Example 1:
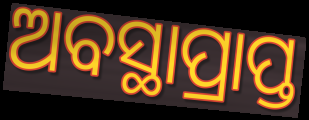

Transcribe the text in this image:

ଅବସ୍ଥାପ୍ରାପ୍ତ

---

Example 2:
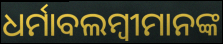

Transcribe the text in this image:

ଧର୍ମାବଲମ୍ବୀମାନଙ୍କ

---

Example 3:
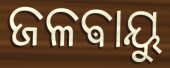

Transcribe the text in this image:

ଜଳଵାୟୁ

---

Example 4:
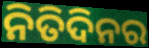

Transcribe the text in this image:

ନିତିଦିନର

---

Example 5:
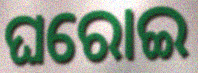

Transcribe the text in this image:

ଘରୋଇ